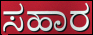
ಸಹಾರ